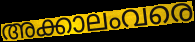
അക്കാലംവരെ